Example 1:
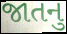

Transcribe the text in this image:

જાતનુ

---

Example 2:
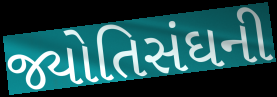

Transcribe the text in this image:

જ્યોતિસંઘની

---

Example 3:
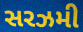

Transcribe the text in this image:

સરઝમી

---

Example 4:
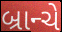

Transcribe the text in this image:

બ્રાન્ચે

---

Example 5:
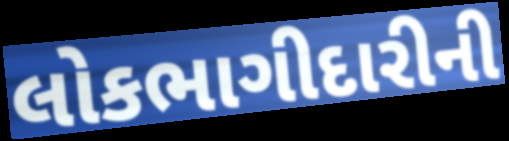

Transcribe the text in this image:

લોકભાગીદારીની